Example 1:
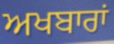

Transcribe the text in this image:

ਅਖਬਾਰਾਂ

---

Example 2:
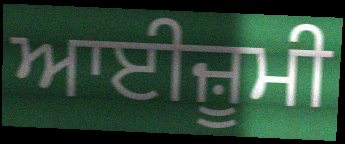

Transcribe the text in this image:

ਆਈਜ਼ੂਮੀ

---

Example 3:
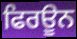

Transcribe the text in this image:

ਫਿਰਊਨ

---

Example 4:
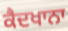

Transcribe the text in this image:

ਕੈਦਖਾਨਾ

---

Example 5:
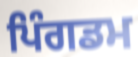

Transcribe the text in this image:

ਪਿੰਗਡਮ